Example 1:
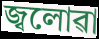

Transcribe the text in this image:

জ্বলোৱা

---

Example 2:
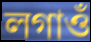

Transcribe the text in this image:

লগাওঁ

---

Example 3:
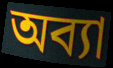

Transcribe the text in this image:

অব্যা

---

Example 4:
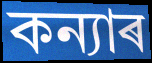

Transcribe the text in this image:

কন্যাৰ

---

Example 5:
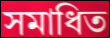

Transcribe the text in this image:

সমাধিত